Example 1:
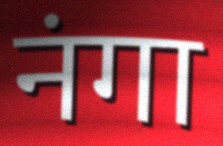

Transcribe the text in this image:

नंगा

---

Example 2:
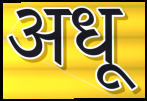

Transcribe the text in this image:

अधू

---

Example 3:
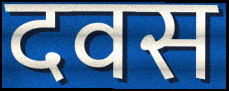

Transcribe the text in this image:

दवस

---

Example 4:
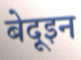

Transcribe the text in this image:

बेदूइन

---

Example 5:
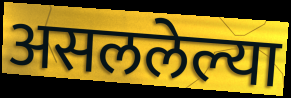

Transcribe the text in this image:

असललेल्या